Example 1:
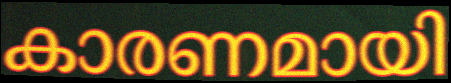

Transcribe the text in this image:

കാരണമായി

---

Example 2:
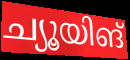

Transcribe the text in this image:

ച്യൂയിങ്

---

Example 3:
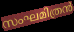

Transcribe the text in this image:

സംഘമിത്രൻ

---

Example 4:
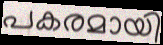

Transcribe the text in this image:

പകരമായി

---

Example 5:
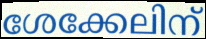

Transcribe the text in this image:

ശേക്കേലിന്